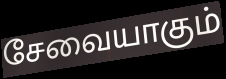
சேவையாகும்